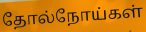
தோல்நோய்கள்